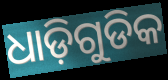
ଧାଡ଼ିଗୁଡିକ